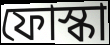
ফোস্কা